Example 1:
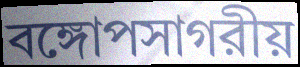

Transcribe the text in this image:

বঙ্গোপসাগরীয়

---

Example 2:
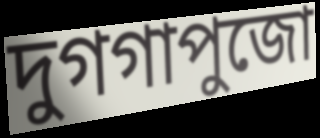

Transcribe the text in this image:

দুগগাপুজো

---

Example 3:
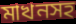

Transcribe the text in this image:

মাখনসহ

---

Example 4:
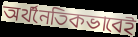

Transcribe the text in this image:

অর্থনৈতিকভাবেই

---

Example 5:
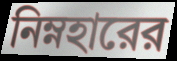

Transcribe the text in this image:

নিম্নহারের